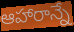
ఆహారాన్నే